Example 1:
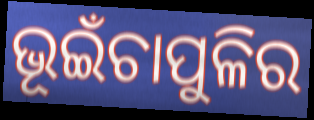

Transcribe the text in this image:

ଭୂଇଁଚାପୁଳିର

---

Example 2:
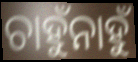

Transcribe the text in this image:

ଚାହୁଁନାହୁଁ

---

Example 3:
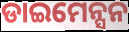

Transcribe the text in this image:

ଡାଇମେନ୍ସନ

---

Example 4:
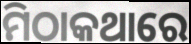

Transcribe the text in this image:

ମିଠାକଥାରେ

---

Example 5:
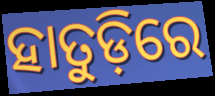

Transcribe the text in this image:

ହାତୁଡ଼ିରେ